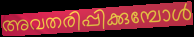
അവതരിപ്പിക്കുമ്പോൾ